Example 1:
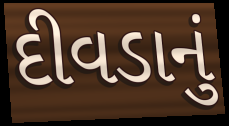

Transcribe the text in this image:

દીવડાનું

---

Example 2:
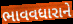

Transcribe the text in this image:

ભાવવધારાને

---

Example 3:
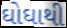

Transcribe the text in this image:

ઘોઘાથી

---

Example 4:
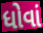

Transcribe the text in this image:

ધોવાં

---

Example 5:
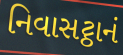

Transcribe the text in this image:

નિવાસટ્ઠાનં